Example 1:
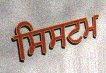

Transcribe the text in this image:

ਸਿਸਟਮ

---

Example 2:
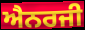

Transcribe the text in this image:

ਐਨਰਜੀ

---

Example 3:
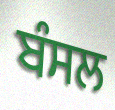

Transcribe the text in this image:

ਬੰਸਲ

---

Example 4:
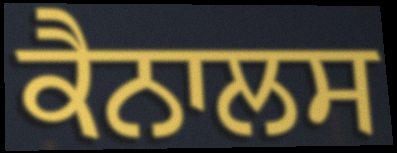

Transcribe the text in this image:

ਕੈਨਾਲਸ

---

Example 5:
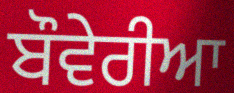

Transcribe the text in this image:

ਬੌਵੇਰੀਆ